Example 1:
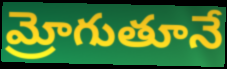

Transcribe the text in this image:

మ్రోగుతూనే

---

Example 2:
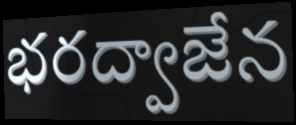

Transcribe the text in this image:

భరద్వాజేన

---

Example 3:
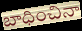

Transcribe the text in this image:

బాధించినా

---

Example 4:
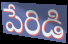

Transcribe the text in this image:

పేరిడి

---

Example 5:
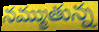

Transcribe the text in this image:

నమ్ముతున్న